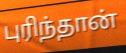
புரிந்தான்